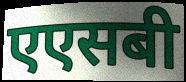
एएसबी